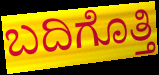
ಬದಿಗೊತ್ತಿ